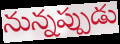
నున్నప్పుడు